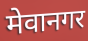
मेवानगर